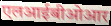
एलआईबीओआर